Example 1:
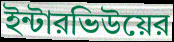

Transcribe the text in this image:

ইন্টারভিউয়ের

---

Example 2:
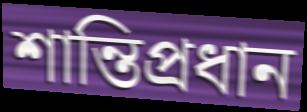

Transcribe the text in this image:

শান্তিপ্রধান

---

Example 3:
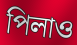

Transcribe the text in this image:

পিলাও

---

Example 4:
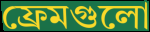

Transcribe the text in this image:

ফ্রেমগুলো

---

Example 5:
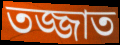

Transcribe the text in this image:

তজ্জাত